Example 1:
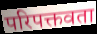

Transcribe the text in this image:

परिपक्तवता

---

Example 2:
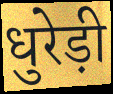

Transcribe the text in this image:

धुरेड़ी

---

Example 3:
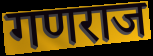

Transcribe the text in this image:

गणराज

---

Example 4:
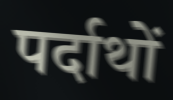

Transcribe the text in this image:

पर्दाथों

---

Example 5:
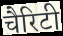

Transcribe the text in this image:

चैरिटी